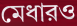
মেধারও